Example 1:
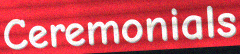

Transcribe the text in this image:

Ceremonials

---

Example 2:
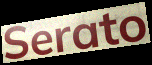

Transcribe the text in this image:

Serato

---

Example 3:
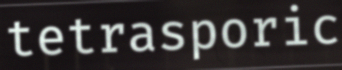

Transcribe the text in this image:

tetrasporic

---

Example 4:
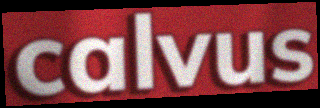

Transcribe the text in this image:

calvus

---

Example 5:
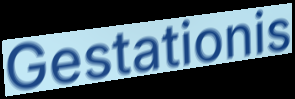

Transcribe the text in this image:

Gestationis